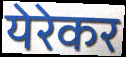
येरेकर